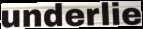
underlie